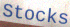
Stocks